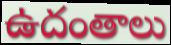
ఉదంతాలు